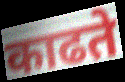
काढते